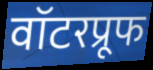
वॉटरप्रूफ